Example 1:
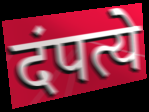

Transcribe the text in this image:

दंपत्ये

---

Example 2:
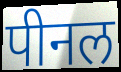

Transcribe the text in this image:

पीनल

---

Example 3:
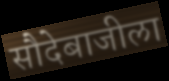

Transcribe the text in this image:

सौदेबाजीला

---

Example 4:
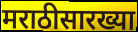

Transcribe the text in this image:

मराठीसारख्या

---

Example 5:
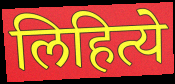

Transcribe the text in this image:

लिहित्ये